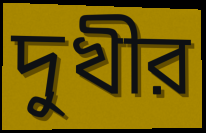
দুখীর